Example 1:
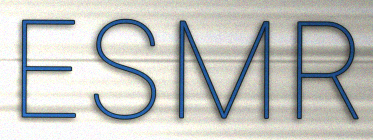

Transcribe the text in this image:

ESMR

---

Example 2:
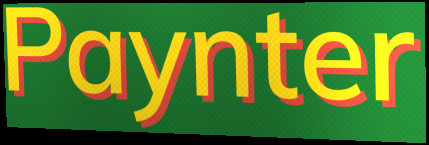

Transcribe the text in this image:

Paynter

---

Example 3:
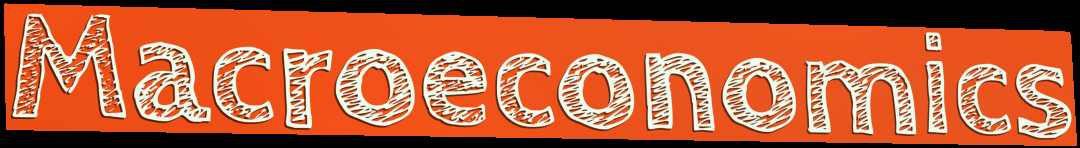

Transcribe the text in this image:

Macroeconomics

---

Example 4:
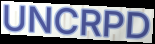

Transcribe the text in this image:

UNCRPD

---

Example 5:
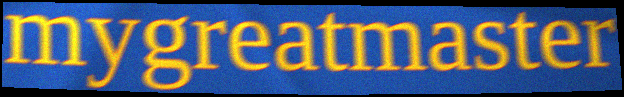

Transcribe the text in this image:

mygreatmaster